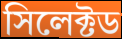
সিলেক্টড